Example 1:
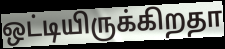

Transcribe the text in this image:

ஒட்டியிருக்கிறதா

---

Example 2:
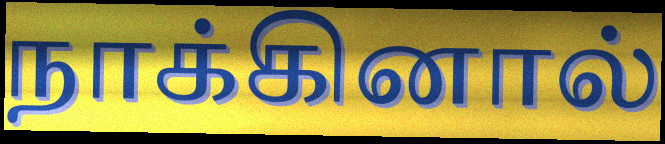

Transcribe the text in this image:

நாக்கினால்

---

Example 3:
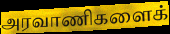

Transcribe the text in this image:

அரவாணிகளைக்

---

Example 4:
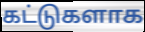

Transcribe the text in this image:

கட்டுகளாக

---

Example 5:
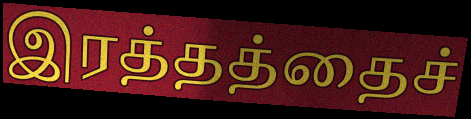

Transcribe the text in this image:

இரத்தத்தைச்